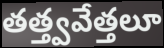
తత్త్వవేత్తలూ